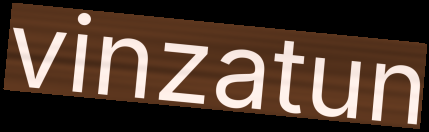
vinzatun